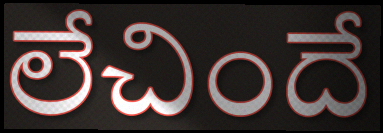
లేచిందే